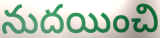
నుదయించి